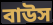
বাউস